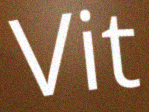
Vit